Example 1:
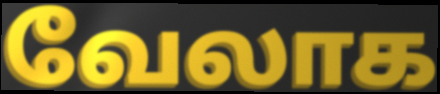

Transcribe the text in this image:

வேலாக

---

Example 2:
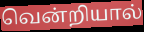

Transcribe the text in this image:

வென்றியால்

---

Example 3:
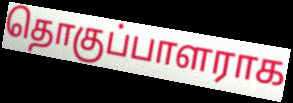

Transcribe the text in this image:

தொகுப்பாளராக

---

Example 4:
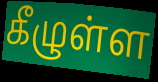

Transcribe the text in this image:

கீழுள்ள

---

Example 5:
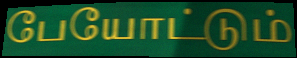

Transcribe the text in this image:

பேயோட்டும்